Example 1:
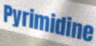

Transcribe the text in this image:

Pyrimidine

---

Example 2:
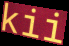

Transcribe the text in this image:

kii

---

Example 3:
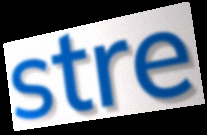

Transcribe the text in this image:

stre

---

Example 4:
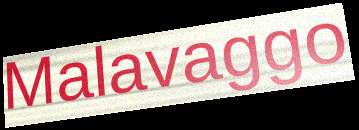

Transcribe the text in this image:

Malavaggo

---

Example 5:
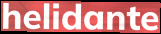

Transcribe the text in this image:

helidante